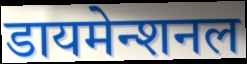
डायमेन्शनल